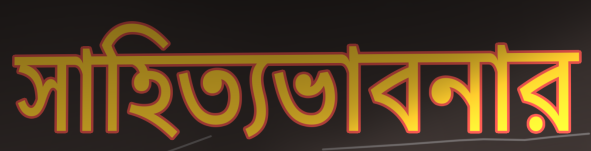
সাহিত্যভাবনার